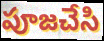
పూజచేసి